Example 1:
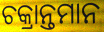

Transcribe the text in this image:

ଚକ୍ରାନ୍ତମାନ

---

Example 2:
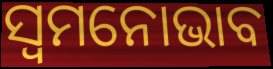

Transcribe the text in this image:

ସ୍ୱମନୋଭାବ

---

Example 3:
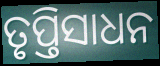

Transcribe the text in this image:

ତୃପ୍ତିସାଧନ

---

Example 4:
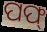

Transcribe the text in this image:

ପଫ୍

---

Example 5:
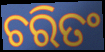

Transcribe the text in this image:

ଚରିତଂ